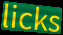
licks